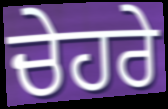
ਚੇਹਰੇ